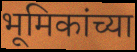
भूमिकांच्या